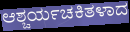
ಆಶ್ಚರ್ಯಚಕಿತಳಾದ